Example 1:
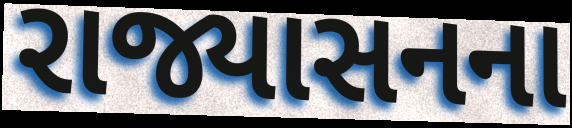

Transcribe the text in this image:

રાજ્યાસનના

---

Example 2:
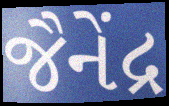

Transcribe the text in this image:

જૈનેંદ્ર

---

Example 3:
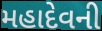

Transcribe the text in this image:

મહાદેવની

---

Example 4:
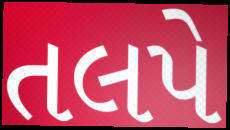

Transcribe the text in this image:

તલપે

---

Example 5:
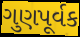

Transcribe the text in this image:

ગુણપૂર્વક